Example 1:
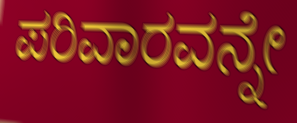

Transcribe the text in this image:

ಪರಿವಾರವನ್ನೇ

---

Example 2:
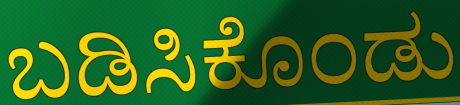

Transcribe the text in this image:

ಬಡಿಸಿಕೊಂಡು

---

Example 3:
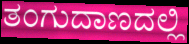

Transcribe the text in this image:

ತಂಗುದಾಣದಲ್ಲಿ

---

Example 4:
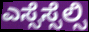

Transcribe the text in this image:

ಎಸ್ಸೆಸ್ಸೆಲ್ಸಿ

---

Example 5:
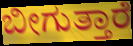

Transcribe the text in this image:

ಬೀಗುತ್ತಾರೆ